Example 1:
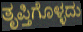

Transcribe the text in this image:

ತೃಪ್ತಿಗೊಳ್ಳದು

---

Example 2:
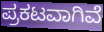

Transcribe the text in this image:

ಪ್ರಕಟವಾಗಿವೆ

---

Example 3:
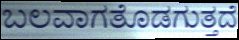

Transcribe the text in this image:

ಬಲವಾಗತೊಡಗುತ್ತದೆ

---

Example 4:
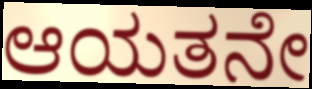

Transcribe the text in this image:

ಆಯತನೇ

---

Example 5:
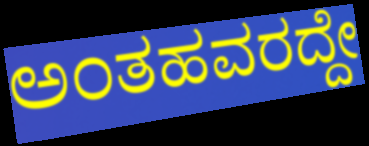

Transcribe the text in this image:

ಅಂತಹವರದ್ದೇ